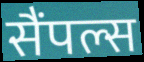
सैंपल्‍स